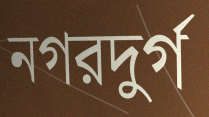
নগরদুর্গ